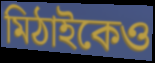
মিঠাইকেও